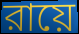
রায়ে